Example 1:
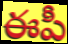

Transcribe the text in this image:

ఈపీ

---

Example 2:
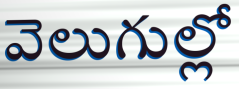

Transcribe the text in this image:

వెలుగుల్లో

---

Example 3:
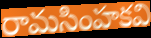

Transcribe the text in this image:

రామసింహకవి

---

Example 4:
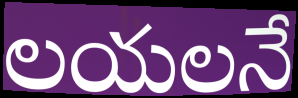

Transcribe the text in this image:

లయలనే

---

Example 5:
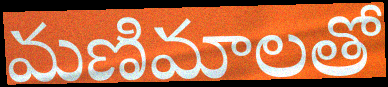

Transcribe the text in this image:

మణిమాలతో